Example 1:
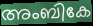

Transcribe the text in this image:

അംബികേ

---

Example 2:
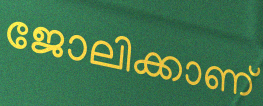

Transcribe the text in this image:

ജോലിക്കാണ്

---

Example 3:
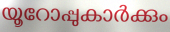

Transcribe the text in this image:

യൂറോപ്പുകാർക്കും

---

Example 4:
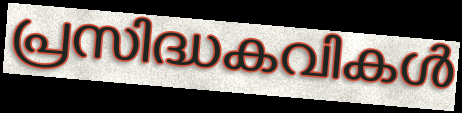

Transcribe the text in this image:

പ്രസിദ്ധകവികൾ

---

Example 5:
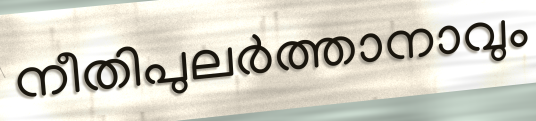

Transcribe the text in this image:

നീതിപുലർത്താനാവും